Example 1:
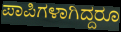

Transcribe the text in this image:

ಪಾಪಿಗಳಾಗಿದ್ದರೂ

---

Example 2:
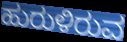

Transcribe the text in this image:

ಹುರುಳಿರುವ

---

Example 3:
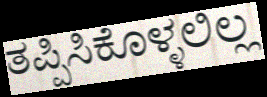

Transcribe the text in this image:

ತಪ್ಪಿಸಿಕೊಳ್ಳಲಿಲ್ಲ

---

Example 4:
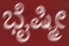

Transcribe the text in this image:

ಭೈಷ್ಮೀ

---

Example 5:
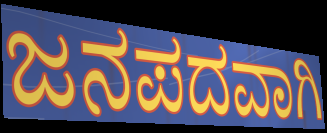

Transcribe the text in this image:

ಜನಪದವಾಗಿ